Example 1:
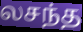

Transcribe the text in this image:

லசந்த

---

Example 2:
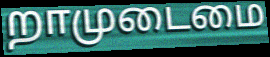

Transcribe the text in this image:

றாமுடைமை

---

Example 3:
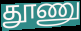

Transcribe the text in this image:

தூணு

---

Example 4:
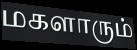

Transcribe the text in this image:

மகளாரும்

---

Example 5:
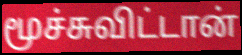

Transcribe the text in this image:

மூச்சுவிட்டான்